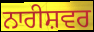
ਨਾਰੀਸ਼ਵਰ